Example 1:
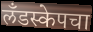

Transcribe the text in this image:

लँडस्केपचा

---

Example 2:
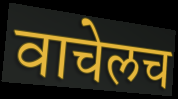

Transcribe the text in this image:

वाचेलच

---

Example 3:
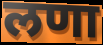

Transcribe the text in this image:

लणा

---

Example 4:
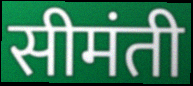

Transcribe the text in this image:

सीमंती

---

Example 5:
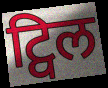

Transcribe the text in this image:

ट्विल